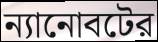
ন্যানোবটের